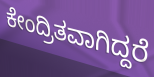
ಕೇಂದ್ರಿತವಾಗಿದ್ದರೆ